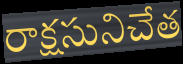
రాక్షసునిచేత